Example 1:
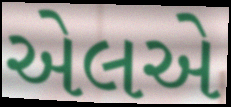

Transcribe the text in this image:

એલએ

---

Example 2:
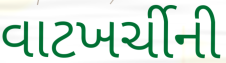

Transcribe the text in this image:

વાટખર્ચીની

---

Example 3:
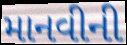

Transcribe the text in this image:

માનવીની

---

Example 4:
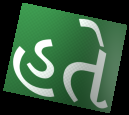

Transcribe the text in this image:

હતે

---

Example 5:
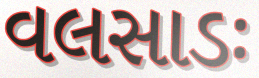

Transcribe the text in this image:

વલસાડઃ